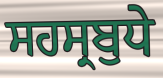
ਸਹਸ੍ਰਬੁਧੇ